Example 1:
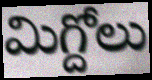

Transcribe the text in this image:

మిగ్దోలు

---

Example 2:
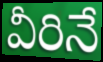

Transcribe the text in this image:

వీరినే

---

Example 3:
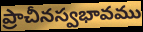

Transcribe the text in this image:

ప్రాచీనస్వభావము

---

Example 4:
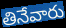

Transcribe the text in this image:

తినేవారు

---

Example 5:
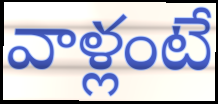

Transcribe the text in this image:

వాళ్లంటే